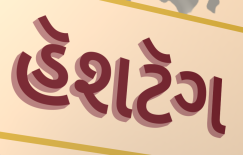
હૅશટૅગ